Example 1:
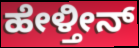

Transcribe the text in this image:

ಹೇಳ್ತೀನ್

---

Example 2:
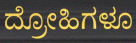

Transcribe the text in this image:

ದ್ರೋಹಿಗಳೂ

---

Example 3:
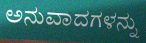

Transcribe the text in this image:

ಅನುವಾದಗಳನ್ನು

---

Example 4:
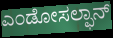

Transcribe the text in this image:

ಎಂಡೋಸಲ್ಫಾನ್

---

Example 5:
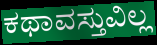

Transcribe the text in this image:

ಕಥಾವಸ್ತುವಿಲ್ಲ